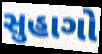
સુહાગો